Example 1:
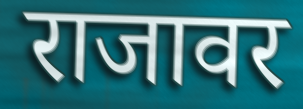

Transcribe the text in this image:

राजावर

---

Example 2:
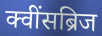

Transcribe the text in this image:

क्वींसब्रिज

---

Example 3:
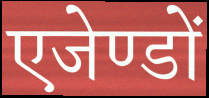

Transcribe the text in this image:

एजेण्डों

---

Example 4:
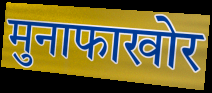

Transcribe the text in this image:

मुनाफाखोर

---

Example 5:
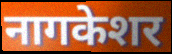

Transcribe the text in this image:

नागकेशर